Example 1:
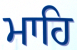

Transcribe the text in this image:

ਮਾਹਿ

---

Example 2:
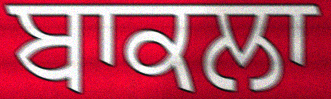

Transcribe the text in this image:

ਬਾਕਲਾ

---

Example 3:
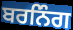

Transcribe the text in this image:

ਬਰਨਿੰਗ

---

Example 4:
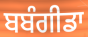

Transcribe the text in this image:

ਬਬੰਗੀਡਾ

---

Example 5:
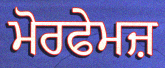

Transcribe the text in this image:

ਮੋਰਫੇਮਜ਼